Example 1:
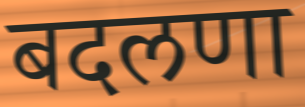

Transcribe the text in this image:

बदलणा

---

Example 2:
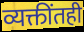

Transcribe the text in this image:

व्यक्तींतही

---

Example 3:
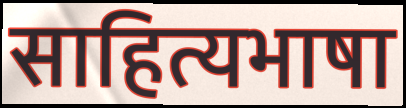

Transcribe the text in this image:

साहित्यभाषा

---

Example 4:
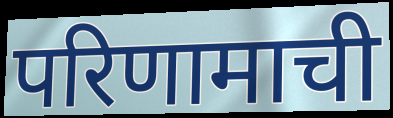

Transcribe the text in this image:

परिणामाची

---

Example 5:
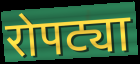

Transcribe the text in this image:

रोपट्या